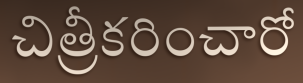
చిత్రీకరించారో